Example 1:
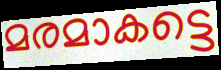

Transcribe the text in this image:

മരമാകട്ടെ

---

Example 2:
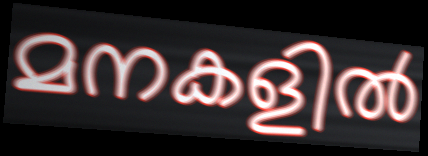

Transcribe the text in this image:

മനകളിൽ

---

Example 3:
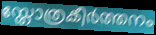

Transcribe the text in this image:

സ്തോത്രകീർത്തനം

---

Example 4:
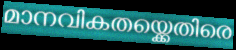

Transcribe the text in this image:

മാനവികതയ്ക്കെതിരെ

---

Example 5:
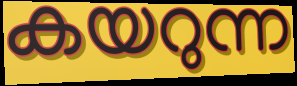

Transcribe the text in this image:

കയറുന്ന